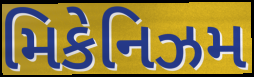
મિકેનિઝમ